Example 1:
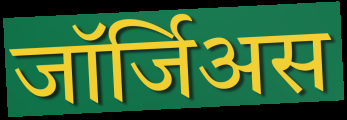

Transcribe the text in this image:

जॉर्जिअस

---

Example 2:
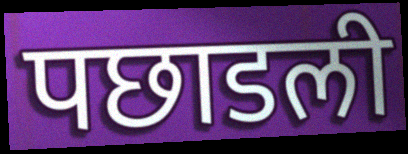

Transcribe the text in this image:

पछाडली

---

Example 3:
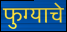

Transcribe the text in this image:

फुग्याचे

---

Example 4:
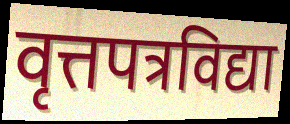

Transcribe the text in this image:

वृत्तपत्रविद्या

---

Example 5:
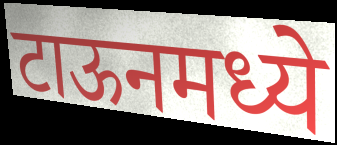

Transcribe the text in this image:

टाऊनमध्ये